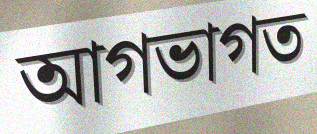
আগভাগত